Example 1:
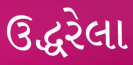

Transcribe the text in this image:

ઉદ્ધરેલા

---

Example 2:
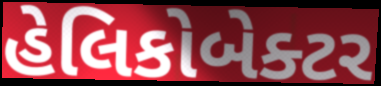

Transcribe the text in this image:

હેલિકોબેક્ટર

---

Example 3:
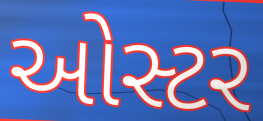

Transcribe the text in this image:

ઓસ્ટર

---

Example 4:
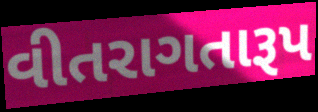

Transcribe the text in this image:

વીતરાગતારૂપ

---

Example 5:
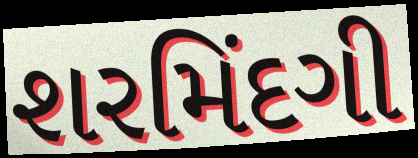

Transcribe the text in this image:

શરમિંદગી